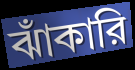
ঝাঁকারি